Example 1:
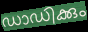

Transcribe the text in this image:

ഡാഡിക്കും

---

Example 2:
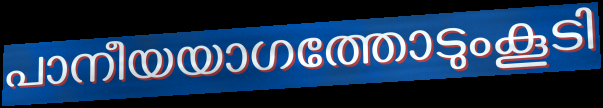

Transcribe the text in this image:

പാനീയയാഗത്തോടുംകൂടി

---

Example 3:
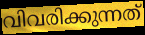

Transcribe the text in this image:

വിവരിക്കുന്നത്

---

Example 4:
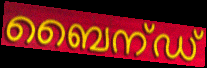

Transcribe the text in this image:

ബൈന്ഡ്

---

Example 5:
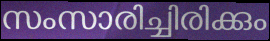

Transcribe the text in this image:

സംസാരിച്ചിരിക്കും